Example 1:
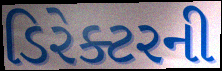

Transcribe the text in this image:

ડિરેક્ટરની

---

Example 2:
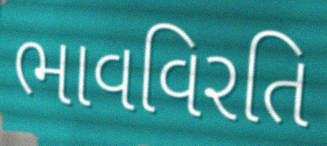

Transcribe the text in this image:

ભાવવિરતિ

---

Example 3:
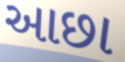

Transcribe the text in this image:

આછા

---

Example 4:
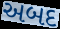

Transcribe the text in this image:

અબદ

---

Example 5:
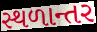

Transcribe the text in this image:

સ્થળાન્તર